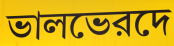
ভালভেরদে